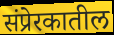
संप्रेरकातील